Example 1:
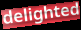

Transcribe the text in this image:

delighted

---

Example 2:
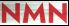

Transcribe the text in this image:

NMN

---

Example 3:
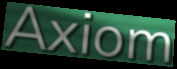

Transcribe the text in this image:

Axiom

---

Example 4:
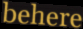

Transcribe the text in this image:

behere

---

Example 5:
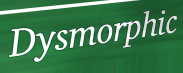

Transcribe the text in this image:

Dysmorphic